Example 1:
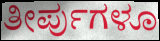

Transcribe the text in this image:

ತೀರ್ಪುಗಳೂ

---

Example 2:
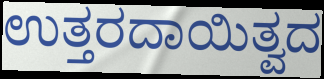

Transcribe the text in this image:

ಉತ್ತರದಾಯಿತ್ವದ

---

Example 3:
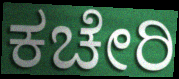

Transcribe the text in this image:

ಕಚೇರಿ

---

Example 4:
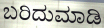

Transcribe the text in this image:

ಬರಿದುಮಾಡಿ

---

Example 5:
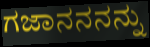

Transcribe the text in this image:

ಗಜಾನನನನ್ನು